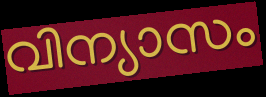
വിന്യാസം